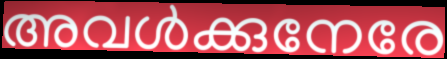
അവൾക്കുനേരേ